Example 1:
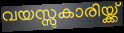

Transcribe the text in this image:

വയസ്സുകാരിയ്ക്ക്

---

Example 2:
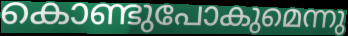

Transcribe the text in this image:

കൊണ്ടുപോകുമെന്നു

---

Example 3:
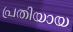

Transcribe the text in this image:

പ്രതിയായ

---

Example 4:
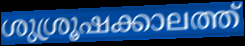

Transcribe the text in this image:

ശുശ്രൂഷക്കാലത്ത്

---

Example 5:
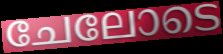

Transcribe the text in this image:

ചേലോടെ